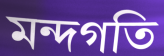
মন্দগতি